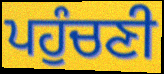
ਪਹੁੰਚਣੀ